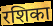
रशिका